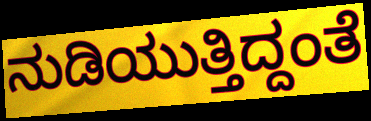
ನುಡಿಯುತ್ತಿದ್ದಂತೆ